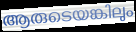
ആരുടെയങ്കിലും